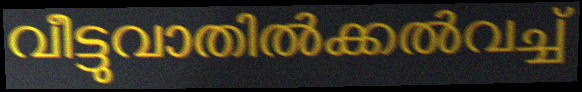
വീട്ടുവാതിൽക്കൽവച്ച്